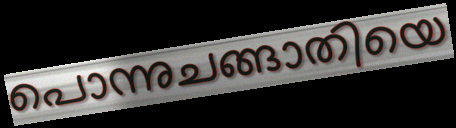
പൊന്നുചങ്ങാതിയെ